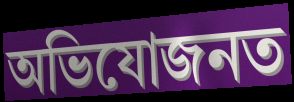
অভিযোজনত